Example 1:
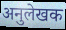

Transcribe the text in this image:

अनुलेखक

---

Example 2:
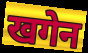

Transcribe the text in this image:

खगेन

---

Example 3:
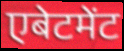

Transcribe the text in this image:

एबेटमेंट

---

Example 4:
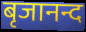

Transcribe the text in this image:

बृजानन्द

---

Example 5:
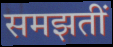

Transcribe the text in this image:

समझतीं